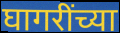
घागरींच्या